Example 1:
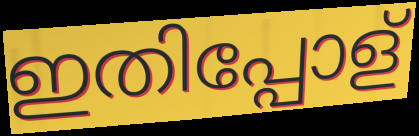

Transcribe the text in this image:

ഇതിപ്പോള്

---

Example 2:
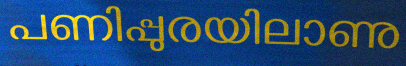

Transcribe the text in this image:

പണിപ്പുരയിലാണു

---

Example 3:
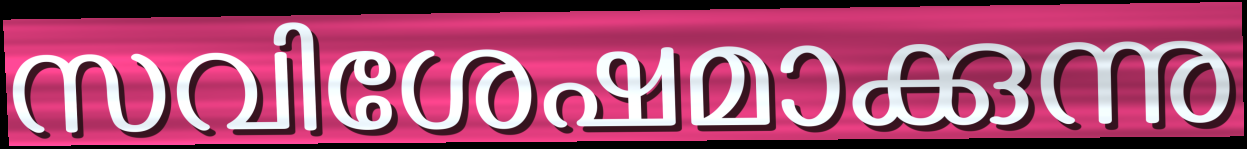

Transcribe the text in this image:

സവിശേഷമാക്കുന്നു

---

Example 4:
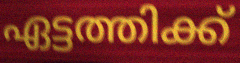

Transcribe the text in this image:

ഏട്ടത്തിക്ക്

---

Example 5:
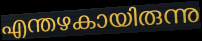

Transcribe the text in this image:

എന്തഴകായിരുന്നു